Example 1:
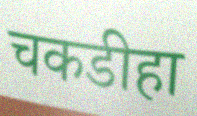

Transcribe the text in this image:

चकडीहा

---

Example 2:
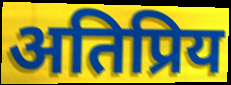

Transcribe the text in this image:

अतिप्रिय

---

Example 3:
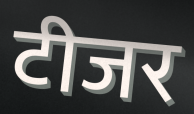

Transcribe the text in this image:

टीजर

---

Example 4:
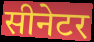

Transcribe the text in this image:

सीनेटर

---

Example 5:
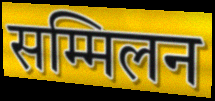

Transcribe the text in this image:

सम्मिलन